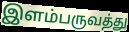
இளம்பருவத்து